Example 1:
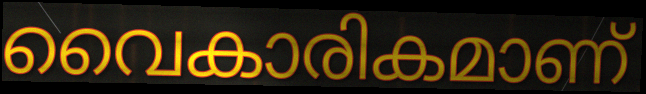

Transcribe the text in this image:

വൈകാരികമാണ്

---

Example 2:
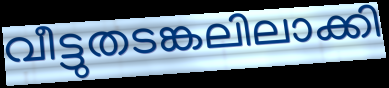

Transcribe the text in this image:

വീട്ടുതടങ്കലിലാക്കി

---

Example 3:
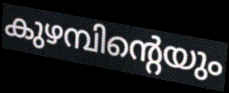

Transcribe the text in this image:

കുഴമ്പിന്റെയും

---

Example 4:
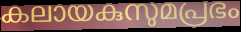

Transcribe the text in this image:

കലായകുസുമപ്രഭം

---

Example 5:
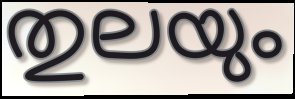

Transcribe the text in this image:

തുലയും